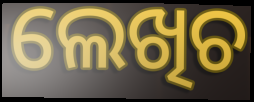
ଲେଖିଚ